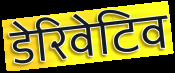
डेरिवेटिव